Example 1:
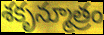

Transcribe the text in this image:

శకృన్మూత్రం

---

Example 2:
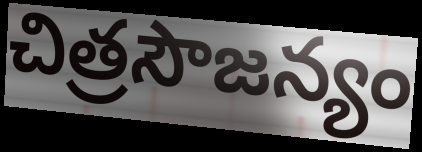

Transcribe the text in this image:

చిత్రసౌజన్యం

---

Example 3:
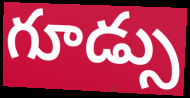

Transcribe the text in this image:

గూడ్సు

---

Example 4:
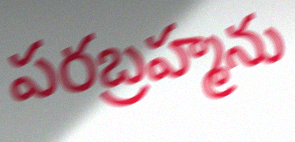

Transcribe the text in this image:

పరబ్రహ్మను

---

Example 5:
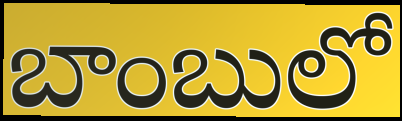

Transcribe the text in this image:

బాంబులో